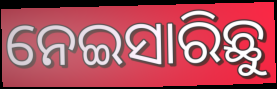
ନେଇସାରିଛୁ